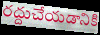
రద్దుచేయడానికి